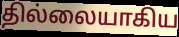
தில்லையாகிய